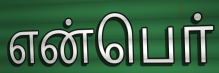
என்பெர்